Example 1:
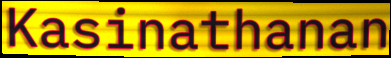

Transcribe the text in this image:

Kasinathanan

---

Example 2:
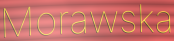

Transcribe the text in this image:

Morawska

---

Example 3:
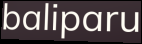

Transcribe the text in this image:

baliparu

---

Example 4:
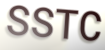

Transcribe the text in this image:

SSTC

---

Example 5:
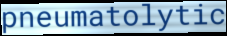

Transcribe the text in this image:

pneumatolytic